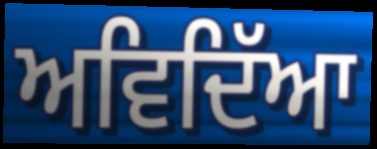
ਅਵਿਦਿੱਆ